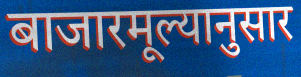
बाजारमूल्यानुसार